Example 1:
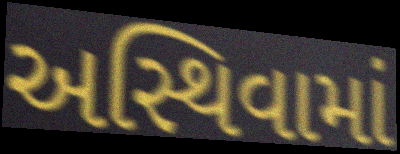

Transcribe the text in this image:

અસ્થિવામાં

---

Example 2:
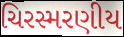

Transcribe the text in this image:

ચિરસ્મરણીય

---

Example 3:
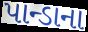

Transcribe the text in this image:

પાન્ડાના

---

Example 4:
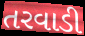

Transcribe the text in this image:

તરવાડી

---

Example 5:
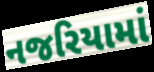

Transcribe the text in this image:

નજરિયામાં